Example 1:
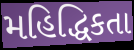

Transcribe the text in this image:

મહિદ્ધિકતા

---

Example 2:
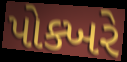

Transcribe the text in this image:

પોક્ખરે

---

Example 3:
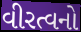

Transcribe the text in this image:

વીરત્વનો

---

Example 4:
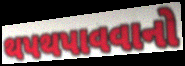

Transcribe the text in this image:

થપથપાવવાનો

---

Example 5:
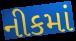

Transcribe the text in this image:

નીકમાં